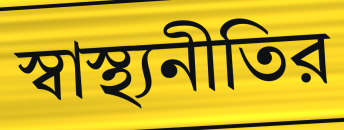
স্বাস্থ্যনীতির